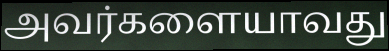
அவர்களையாவது